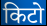
किटो